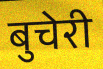
बुचेरी